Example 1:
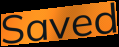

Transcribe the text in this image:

Saved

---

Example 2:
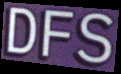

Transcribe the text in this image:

DFS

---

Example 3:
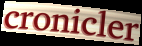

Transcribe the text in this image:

cronicler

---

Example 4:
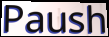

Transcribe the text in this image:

Paush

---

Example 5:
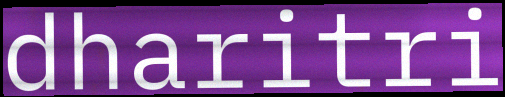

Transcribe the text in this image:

dharitri